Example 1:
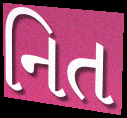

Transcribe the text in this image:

નિત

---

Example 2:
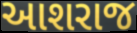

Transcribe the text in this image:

આશરાજ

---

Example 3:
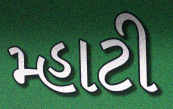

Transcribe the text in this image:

મ્હાટી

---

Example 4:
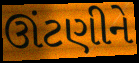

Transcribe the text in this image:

ઊંટણીને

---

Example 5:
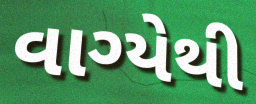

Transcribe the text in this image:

વાગ્યેથી